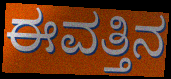
ಈವತ್ತಿನ